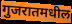
गुजरातमधील